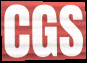
CGS